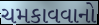
ચમકાવવાનો